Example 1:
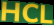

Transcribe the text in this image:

HCL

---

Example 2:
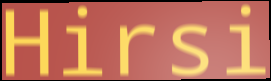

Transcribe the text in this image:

Hirsi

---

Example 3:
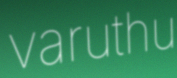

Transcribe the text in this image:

varuthu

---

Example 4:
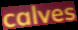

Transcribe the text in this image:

calves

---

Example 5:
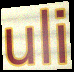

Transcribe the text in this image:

uli